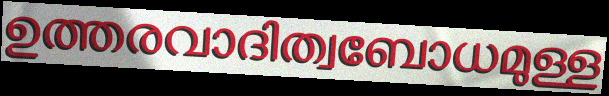
ഉത്തരവാദിത്വബോധമുള്ള